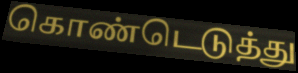
கொண்டெடுத்து